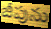
జీపును